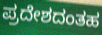
ಪ್ರದೇಶದಂತಹ